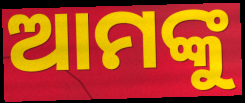
ଆମଙ୍କୁ